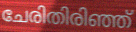
ചേരിതിരിഞ്ഞ്